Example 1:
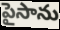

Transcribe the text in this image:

పైసాను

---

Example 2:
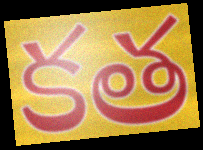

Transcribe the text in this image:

కత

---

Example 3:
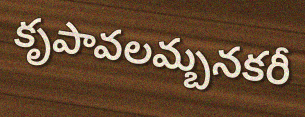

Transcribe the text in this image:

కృపావలమ్బనకరీ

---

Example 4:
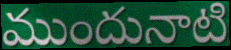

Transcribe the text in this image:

ముందునాటి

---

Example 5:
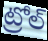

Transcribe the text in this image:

ట్రోల్